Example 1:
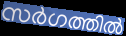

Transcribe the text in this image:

സർഗത്തിൽ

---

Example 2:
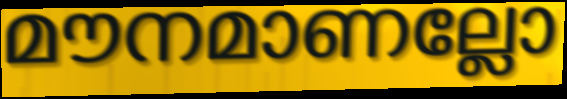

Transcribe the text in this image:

മൗനമാണല്ലോ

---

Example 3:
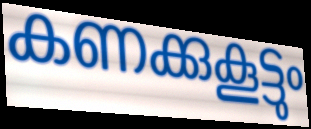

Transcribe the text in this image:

കണക്കുകൂട്ടും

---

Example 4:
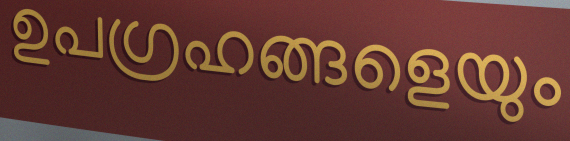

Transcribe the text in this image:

ഉപഗ്രഹങ്ങളെയും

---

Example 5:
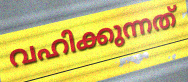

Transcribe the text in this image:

വഹിക്കുന്നത്